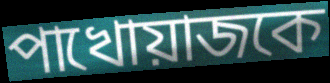
পাখোয়াজকে